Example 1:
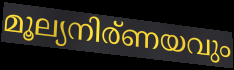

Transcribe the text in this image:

മൂല്യനിര്ണയവും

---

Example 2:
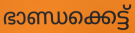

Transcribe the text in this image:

ഭാണ്ഡക്കെട്ട്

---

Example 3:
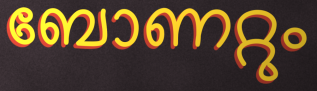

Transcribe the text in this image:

ബോണറ്റും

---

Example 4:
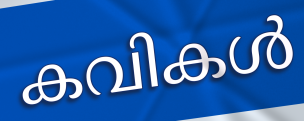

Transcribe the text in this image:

കവികൾ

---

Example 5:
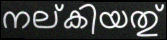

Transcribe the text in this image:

നല്കിയതു്